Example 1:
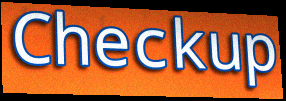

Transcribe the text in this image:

Checkup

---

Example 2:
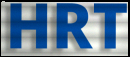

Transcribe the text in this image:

HRT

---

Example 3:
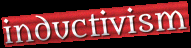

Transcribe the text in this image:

inductivism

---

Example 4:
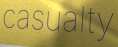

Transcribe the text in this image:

casualty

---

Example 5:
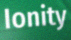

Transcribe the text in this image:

Ionity